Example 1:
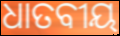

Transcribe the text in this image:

ଧାତବୀୟ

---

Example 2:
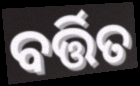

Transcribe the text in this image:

ବର୍ତ୍ତିତ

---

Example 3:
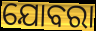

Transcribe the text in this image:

ଯୋବରା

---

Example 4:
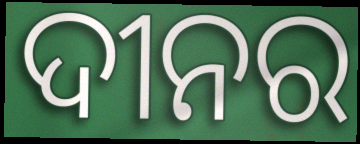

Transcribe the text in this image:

ଦୀନର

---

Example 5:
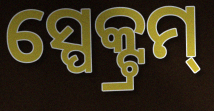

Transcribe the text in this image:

ସ୍ପେକ୍ଟ୍ରମ୍